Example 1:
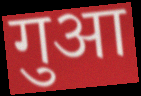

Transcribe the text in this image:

गुआ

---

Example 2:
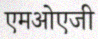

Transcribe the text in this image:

एमओएजी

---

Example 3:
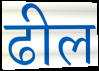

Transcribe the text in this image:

ढील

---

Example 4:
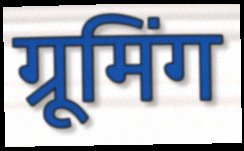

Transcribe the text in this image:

ग्रूमिंग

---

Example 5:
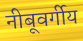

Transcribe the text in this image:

नीबूवर्गीय